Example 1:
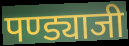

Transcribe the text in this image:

पण्ड्याजी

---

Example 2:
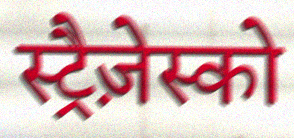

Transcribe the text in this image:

स्ट्रैज़ेस्को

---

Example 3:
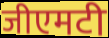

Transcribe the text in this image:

जीएमटी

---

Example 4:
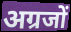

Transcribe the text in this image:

अग्रजों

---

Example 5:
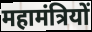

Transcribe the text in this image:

महामंत्रियों